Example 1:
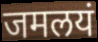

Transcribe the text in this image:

जमलयं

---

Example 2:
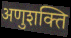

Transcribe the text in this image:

अणुशक्ति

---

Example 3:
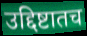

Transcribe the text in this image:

उद्दिष्टातच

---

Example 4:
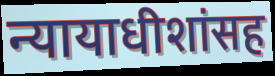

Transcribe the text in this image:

न्यायाधीशांसह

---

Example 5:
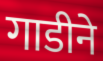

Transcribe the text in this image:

गाडीने